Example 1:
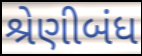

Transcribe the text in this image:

શ્રેણીબંધ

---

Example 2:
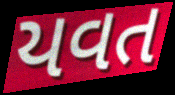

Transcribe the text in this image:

યવત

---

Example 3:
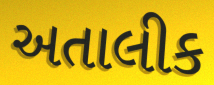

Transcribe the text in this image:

અતાલીક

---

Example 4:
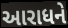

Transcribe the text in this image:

આરાધને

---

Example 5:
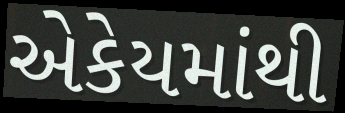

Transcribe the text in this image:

એકેયમાંથી